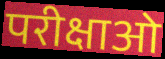
परीक्षाओ